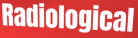
Radiological